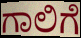
ಗಾಲಿಗೆ